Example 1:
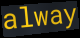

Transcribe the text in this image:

alway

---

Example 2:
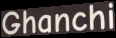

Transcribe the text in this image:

Ghanchi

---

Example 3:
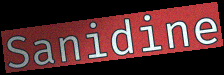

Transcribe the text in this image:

Sanidine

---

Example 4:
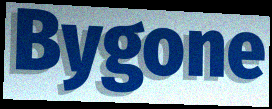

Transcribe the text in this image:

Bygone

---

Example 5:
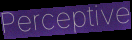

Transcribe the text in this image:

Perceptive